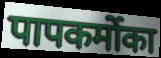
पापकर्मोका